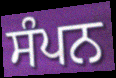
ਸੰਪਨ